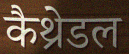
कैथ्रेडल